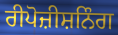
ਰੀਪੋਜ਼ੀਸ਼ਨਿੰਗ